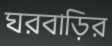
ঘরবাড়ির